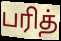
பரித்